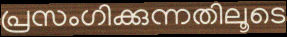
പ്രസംഗിക്കുന്നതിലൂടെ